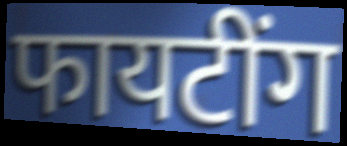
फायटींग